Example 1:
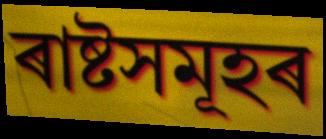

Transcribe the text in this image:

ৰাষ্টসমূহৰ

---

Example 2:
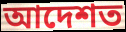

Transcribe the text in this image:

আদেশত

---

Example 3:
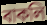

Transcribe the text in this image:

বাকলি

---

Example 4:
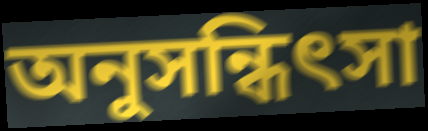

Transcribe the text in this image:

অনুসন্ধিৎসা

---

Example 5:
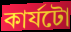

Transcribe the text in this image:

কাৰ্যটো